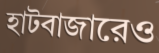
হাটবাজারেও